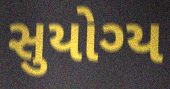
સુયોગ્ય